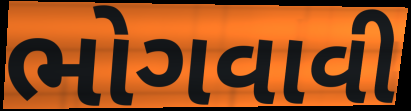
ભોગવાવી